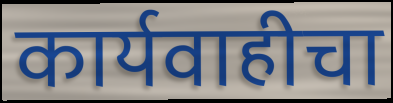
कार्यवाहीचा